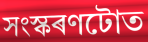
সংস্কৰণটোত